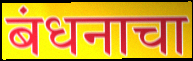
बंधनाचा